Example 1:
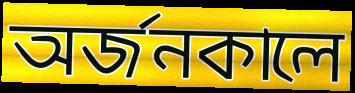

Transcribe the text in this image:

অর্জনকালে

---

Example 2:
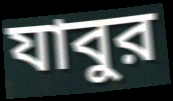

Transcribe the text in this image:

যাবুর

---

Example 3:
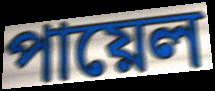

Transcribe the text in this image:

পায়েল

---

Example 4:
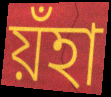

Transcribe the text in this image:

য়ঁহা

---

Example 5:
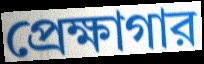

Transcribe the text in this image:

প্রেক্ষাগার